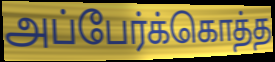
அப்பேர்க்கொத்த